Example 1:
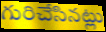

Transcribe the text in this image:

గురిచేసినట్లు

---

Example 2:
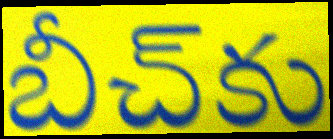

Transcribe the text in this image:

బీచ్‌కు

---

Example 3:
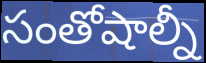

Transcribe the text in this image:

సంతోషాల్నీ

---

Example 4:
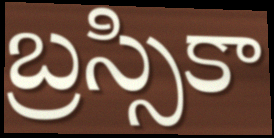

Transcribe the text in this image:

బ్రస్సికా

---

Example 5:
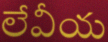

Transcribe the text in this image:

లేవీయ